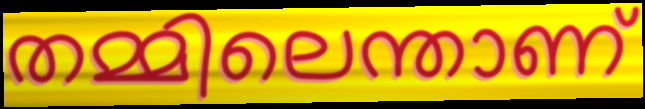
തമ്മിലെന്താണ്